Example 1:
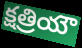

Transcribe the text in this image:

క్షత్రియౌ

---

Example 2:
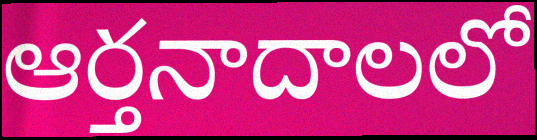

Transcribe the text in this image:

ఆర్తనాదాలలో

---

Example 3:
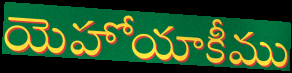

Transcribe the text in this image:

యెహోయాకీము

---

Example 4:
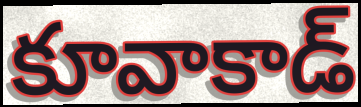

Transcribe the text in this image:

కూవాకాడ్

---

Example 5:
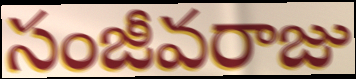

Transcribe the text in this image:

సంజీవరాజు